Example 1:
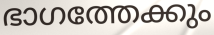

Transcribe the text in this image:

ഭാഗത്തേക്കും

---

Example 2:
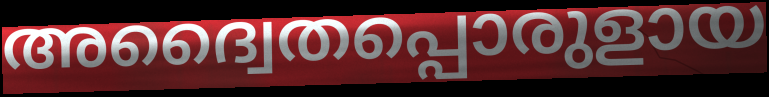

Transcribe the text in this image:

അദ്വൈതപ്പൊരുളായ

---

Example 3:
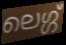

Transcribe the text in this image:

ലെഗ്ഗ്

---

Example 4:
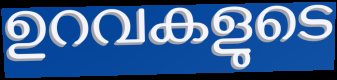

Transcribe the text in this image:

ഉറവകളുടെ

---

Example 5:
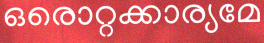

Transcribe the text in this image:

ഒരൊറ്റക്കാര്യമേ